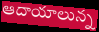
ఆదాయాలున్న